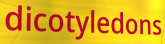
dicotyledons